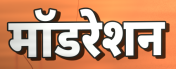
मॉडरेशन